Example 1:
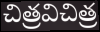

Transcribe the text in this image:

చిత్రవిచిత్ర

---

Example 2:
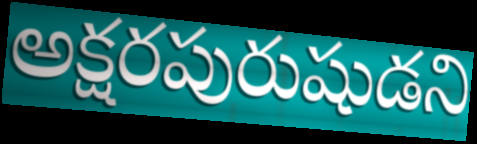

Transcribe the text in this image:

అక్షరపురుషుడని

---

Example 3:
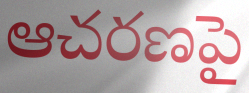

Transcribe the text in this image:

ఆచరణపై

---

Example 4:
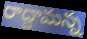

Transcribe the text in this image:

రాద్దామన్న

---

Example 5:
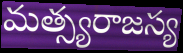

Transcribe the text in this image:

మత్స్యరాజస్య